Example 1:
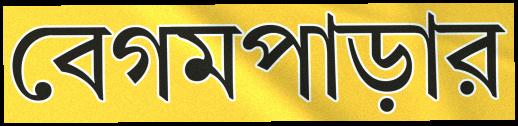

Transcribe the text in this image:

বেগমপাড়ার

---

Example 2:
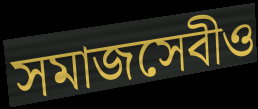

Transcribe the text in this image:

সমাজসেবীও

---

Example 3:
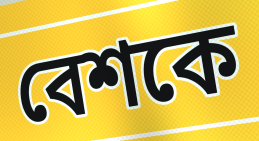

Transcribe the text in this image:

বেশকে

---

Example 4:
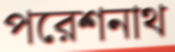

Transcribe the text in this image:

পরেশনাথ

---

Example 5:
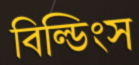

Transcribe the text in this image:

বিল্ডিংস